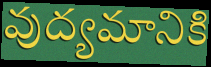
వుద్యమానికి